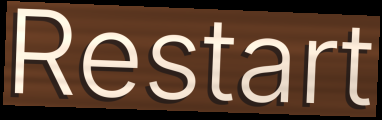
Restart